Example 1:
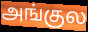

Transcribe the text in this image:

அங்குல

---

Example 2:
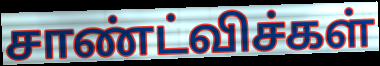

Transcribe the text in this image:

சாண்ட்விச்கள்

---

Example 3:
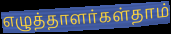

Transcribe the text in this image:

எழுத்தாளர்கள்தாம்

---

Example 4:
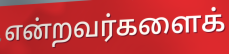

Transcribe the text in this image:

என்றவர்களைக்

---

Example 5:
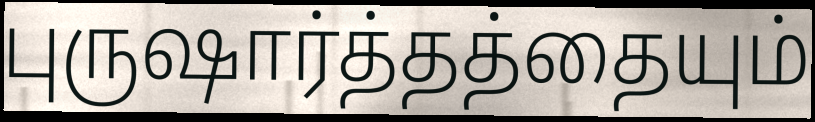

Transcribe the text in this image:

புருஷார்த்தத்தையும்